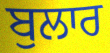
ਬੁਲਾਰ